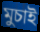
মুচাই